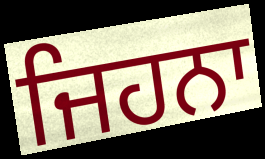
ਜਿਹਨਾ